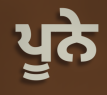
ਪੂਨੇ